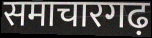
समाचारगढ़